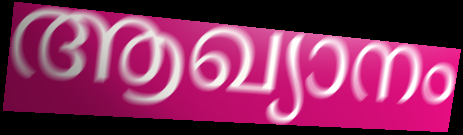
ആഖ്യാനം